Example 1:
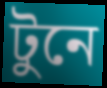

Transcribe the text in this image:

টুনে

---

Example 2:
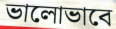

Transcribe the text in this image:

ভালোভাবে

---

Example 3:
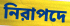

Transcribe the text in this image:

নিরাপদে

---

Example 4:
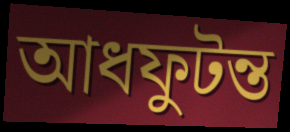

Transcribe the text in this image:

আধফুটন্ত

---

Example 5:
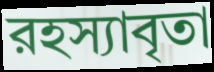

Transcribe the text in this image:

রহস্যাবৃতা